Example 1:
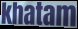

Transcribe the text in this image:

khatam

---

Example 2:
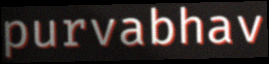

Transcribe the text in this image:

purvabhav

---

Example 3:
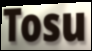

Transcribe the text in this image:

Tosu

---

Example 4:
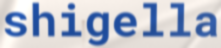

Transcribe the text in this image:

shigella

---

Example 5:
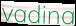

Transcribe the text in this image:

vadina